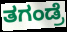
ತಗಂಡ್ರೆ